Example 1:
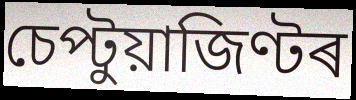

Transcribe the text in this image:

চেপ্টুয়াজিণ্টৰ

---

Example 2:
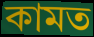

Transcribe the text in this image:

কামত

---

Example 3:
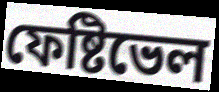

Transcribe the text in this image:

ফেষ্টিভেল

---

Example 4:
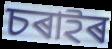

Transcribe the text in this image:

চৰাইৰ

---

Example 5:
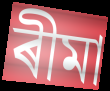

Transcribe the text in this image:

ৰীমা